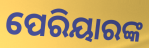
ପେରିୟାରଙ୍କ